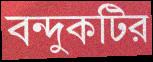
বন্দুকটির